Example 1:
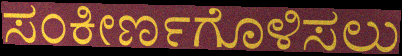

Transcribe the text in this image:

ಸಂಕೀರ್ಣಗೊಳಿಸಲು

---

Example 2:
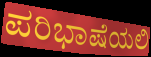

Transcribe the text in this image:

ಪರಿಭಾಷೆಯಲಿ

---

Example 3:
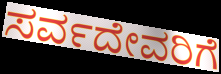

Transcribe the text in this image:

ಸರ್ವದೇವರಿಗೆ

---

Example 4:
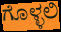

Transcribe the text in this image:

ಗೊಳ್ಳಲಿ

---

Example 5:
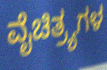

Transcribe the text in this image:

ವೈಚಿತ್ರ್ಯಗಳ